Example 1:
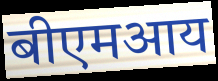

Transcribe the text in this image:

बीएमआय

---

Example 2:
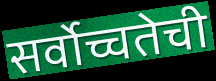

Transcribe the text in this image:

सर्वोच्चतेची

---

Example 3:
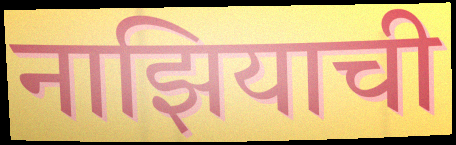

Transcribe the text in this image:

नाझियाची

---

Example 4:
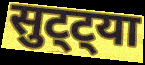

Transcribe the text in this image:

सुट्ट्या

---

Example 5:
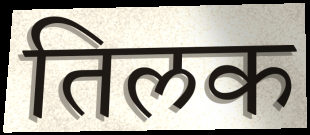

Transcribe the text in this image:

तिलक